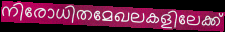
നിരോധിതമേഖലകളിലേക്ക്